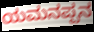
ಯಮನಪ್ಪನ